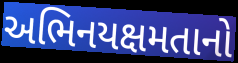
અભિનયક્ષમતાનો